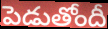
పెడుతోందీ